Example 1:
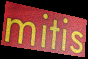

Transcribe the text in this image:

mitis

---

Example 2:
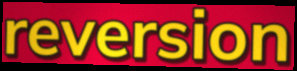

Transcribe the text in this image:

reversion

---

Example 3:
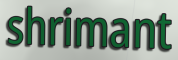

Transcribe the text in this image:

shrimant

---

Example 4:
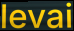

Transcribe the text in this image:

levai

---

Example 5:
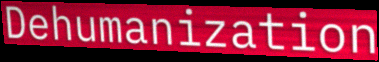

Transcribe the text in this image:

Dehumanization